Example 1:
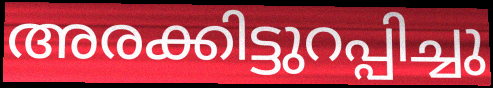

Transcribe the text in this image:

അരക്കിട്ടുറപ്പിച്ചു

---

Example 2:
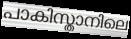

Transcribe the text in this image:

പാകിസ്താനിലെ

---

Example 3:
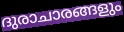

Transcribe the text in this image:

ദുരാചാരങ്ങളും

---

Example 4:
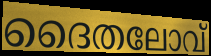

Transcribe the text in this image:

ദൈതലോവ്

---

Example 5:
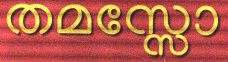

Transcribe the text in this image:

തമസ്സോ